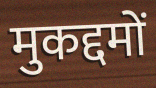
मुकद्दमों